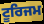
ਟੂਰਿਜਮ